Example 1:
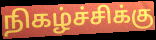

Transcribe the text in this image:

நிகழ்ச்சிக்கு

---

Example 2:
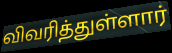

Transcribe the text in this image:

விவரித்துள்ளார்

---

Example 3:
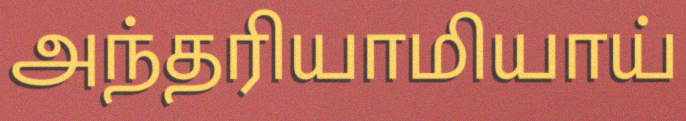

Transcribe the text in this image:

அந்தரியாமியாய்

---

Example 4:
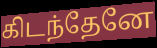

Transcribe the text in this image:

கிடந்தேனே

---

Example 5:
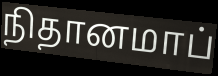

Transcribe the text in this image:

நிதானமாப்